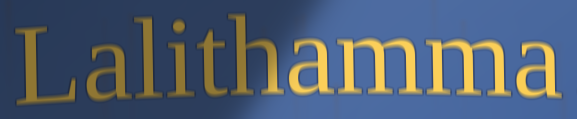
Lalithamma